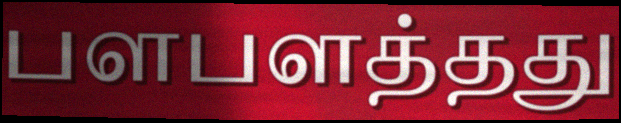
பளபளத்தது